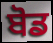
ਬੋਡ